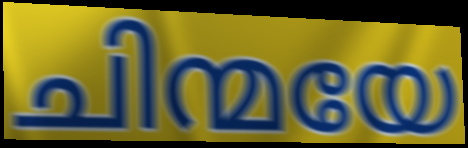
ചിന്മയേ